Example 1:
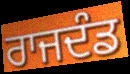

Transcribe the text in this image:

ਰਾਜਦੰਡ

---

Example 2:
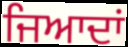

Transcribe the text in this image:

ਜਿਆਦਾਂ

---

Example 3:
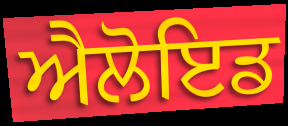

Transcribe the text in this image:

ਐਲੋਇਡ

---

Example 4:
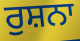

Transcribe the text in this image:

ਰੁਸ਼ਨਾ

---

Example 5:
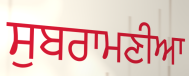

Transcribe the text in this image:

ਸੁਬਰਾਮਣੀਆ